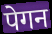
पेगन